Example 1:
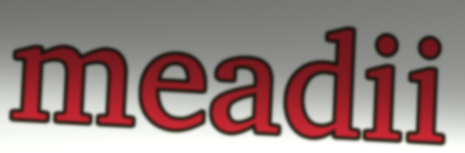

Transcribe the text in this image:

meadii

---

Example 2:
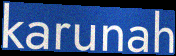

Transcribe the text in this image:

karunah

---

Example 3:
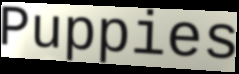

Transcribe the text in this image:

Puppies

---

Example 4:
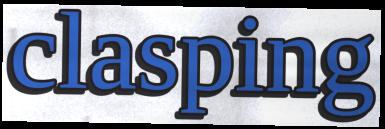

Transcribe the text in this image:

clasping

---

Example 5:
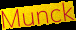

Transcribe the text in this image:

Munck